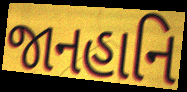
જાનહાનિ